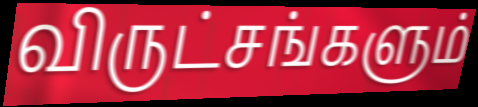
விருட்சங்களும்